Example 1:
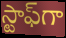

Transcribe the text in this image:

స్టాఫ్‌గా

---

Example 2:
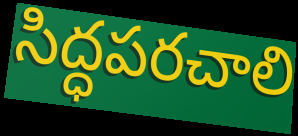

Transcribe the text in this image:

సిద్ధపరచాలి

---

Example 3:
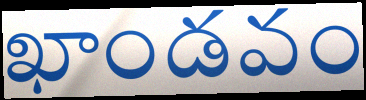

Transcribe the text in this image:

ఖాండవం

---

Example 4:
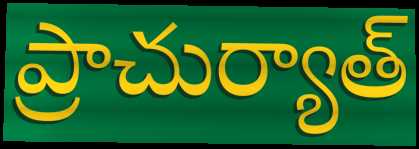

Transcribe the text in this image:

ప్రాచుర్యాత్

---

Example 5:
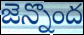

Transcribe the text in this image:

జెన్నొంద